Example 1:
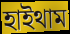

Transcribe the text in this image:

হাইথাম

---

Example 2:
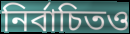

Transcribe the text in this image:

নির্বাচিতও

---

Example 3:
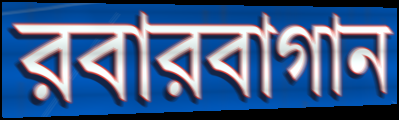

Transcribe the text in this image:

রবারবাগান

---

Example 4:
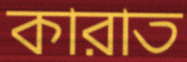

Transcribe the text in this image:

কারাত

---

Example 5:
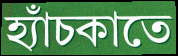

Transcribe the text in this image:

হ্যাঁচকাতে